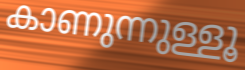
കാണുന്നുള്ളൂ